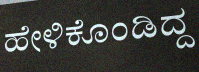
ಹೇಳಿಕೊಂಡಿದ್ದ